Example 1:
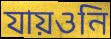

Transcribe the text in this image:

যায়ওনি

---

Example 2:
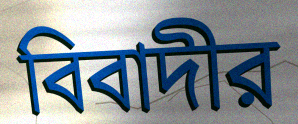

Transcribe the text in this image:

বিবাদীর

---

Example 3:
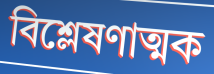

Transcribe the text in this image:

বিশ্লেষণাত্মক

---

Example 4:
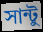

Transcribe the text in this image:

সান্টু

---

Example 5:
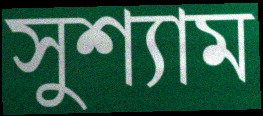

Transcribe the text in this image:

সুশ্যাম